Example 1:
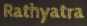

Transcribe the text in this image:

Rathyatra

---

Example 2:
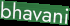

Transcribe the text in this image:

bhavani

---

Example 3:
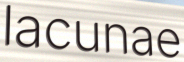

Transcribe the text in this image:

lacunae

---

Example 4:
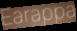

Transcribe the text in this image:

Earappa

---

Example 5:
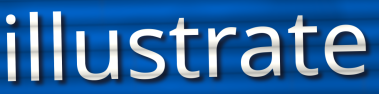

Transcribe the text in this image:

illustrate